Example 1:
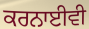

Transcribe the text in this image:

ਕਰਨਾਈਵੀ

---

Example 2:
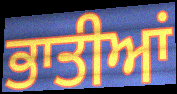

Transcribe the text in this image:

ਭਾਤੀਆਂ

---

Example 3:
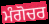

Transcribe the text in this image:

ਮੰਗੋਚਰ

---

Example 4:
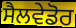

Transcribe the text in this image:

ਸੈਲਵੇਡੋਰ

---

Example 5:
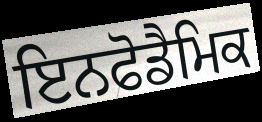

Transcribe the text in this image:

ਇਨਫੋਡੈਮਿਕ